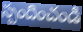
స్పందించండి